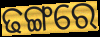
ଢଙ୍ଗରେ